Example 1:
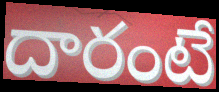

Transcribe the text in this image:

దారంటే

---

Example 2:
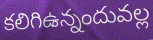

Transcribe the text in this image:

కలిగిఉన్నందువల్ల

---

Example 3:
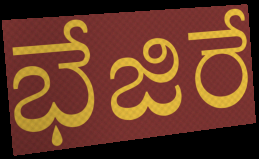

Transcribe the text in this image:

భేజిరే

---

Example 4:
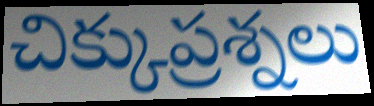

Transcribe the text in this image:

చిక్కుప్రశ్నలు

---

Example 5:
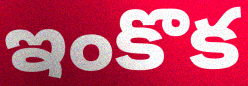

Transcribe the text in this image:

ఇంకొక